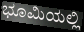
ಭೂಮಿಯಲ್ಲಿ